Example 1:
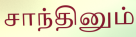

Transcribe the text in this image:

சாந்தினும்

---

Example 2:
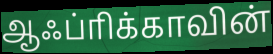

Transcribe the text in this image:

ஆஃப்ரிக்காவின்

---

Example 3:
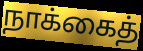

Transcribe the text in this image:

நாக்கைத்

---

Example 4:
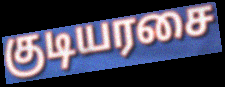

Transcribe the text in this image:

குடியரசை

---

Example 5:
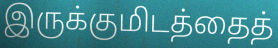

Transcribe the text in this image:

இருக்குமிடத்தைத்